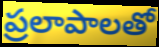
ప్రలాపాలతో